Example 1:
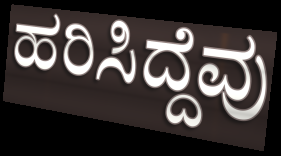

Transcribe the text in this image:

ಹರಿಸಿದ್ದೆವು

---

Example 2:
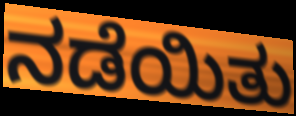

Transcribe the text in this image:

ನಡೆಯಿತು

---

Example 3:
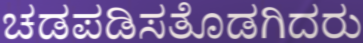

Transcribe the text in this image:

ಚಡಪಡಿಸತೊಡಗಿದರು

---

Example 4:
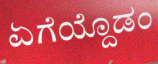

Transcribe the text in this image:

ಏಗೆಯ್ದೊಡಂ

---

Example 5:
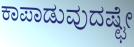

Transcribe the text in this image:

ಕಾಪಾಡುವುದಷ್ಟೇ